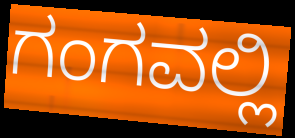
ಗಂಗವಲ್ಲಿ